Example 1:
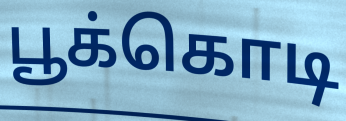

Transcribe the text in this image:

பூக்கொடி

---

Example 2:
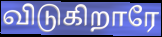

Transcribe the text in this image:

விடுகிறாரே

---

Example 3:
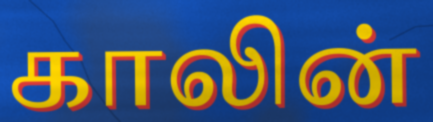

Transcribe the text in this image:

காலின்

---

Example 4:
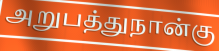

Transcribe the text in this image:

அறுபத்துநான்கு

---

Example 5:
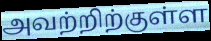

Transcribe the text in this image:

அவற்றிற்குள்ள